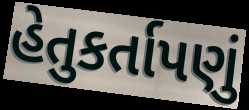
હેતુકર્તાપણું